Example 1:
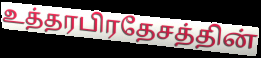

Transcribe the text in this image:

உத்தரபிரதேசத்தின்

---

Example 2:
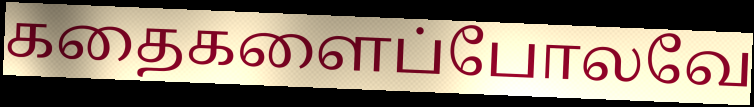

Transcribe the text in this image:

கதைகளைப்போலவே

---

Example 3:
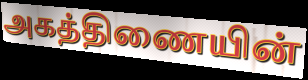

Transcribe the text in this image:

அகத்திணையின்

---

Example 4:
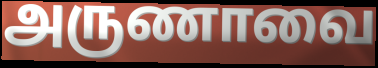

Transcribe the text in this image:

அருணாவை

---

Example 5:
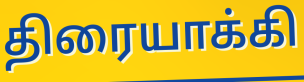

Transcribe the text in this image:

திரையாக்கி